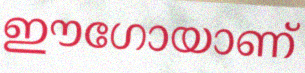
ഈഗോയാണ്